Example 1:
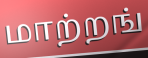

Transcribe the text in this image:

மாற்றங்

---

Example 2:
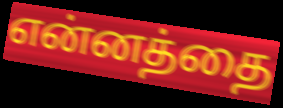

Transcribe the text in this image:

என்னத்தை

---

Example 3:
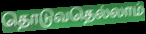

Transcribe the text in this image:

தொடுவதெல்லாம்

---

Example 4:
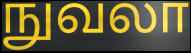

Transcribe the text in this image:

நுவலா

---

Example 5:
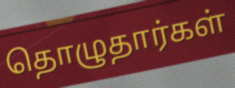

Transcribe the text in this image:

தொழுதார்கள்